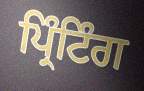
ਪ੍ਰਿੰਟਿੰਗ